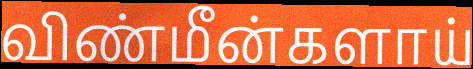
விண்மீன்களாய்